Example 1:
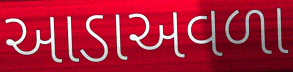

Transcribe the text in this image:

આડાઅવળા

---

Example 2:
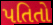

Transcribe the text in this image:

પતિતો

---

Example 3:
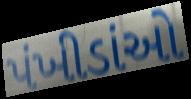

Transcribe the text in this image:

પંખીડાંઓ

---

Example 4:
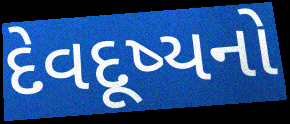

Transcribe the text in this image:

દેવદૂષ્યનો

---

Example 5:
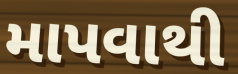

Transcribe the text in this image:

માપવાથી